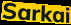
Sarkai